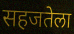
सहजतेला